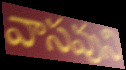
వాసవుని